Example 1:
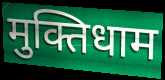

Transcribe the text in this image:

मुक्तिधाम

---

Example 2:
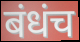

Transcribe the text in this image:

बंधंच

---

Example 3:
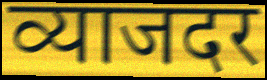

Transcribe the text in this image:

व्याजदर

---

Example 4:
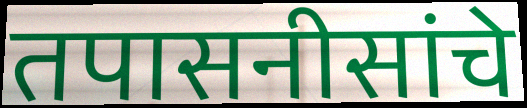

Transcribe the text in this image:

तपासनीसांचे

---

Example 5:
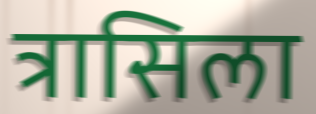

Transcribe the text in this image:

त्रासिला